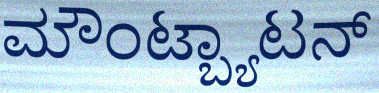
ಮೌಂಟ್ಬ್ಯಾಟನ್